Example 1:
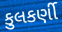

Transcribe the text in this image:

કુલકર્ણી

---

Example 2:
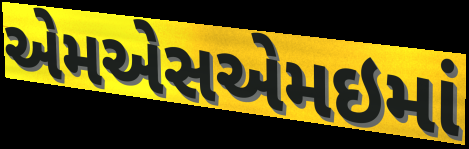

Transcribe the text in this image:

એમએસએમઇમાં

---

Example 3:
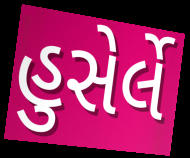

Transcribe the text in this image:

હુસેર્લે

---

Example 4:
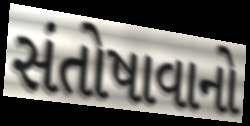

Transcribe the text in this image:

સંતોષાવાનો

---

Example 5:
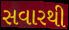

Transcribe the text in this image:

સવારથી